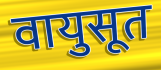
वायुसूत